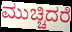
ಮುಚ್ಚಿದರೆ